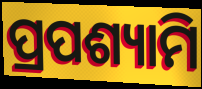
ପ୍ରପଶ୍ୟାମି